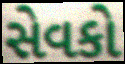
સેવકો